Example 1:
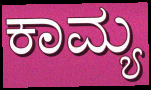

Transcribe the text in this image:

ಕಾಮ್ಯ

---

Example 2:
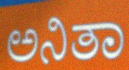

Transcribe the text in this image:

ಅನಿತಾ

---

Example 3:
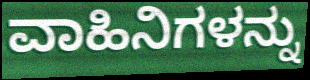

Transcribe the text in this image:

ವಾಹಿನಿಗಳನ್ನು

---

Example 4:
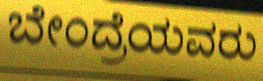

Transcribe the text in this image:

ಬೇಂದ್ರೆಯವರು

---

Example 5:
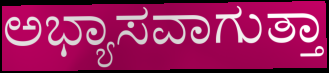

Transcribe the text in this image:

ಅಭ್ಯಾಸವಾಗುತ್ತಾ